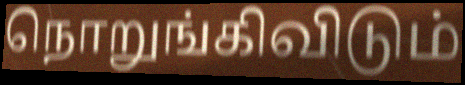
நொறுங்கிவிடும்